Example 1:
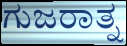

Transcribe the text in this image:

ಗುಜರಾತ್ನ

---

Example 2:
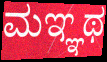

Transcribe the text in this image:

ಮಞ್ಞಥ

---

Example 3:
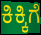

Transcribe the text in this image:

ಕಿಕ್ಕಿಗೆ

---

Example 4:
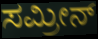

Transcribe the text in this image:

ಸಮ್ರೀನ್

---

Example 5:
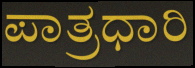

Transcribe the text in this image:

ಪಾತ್ರಧಾರಿ